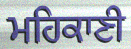
ਮਹਿਕਾਣੀ